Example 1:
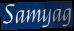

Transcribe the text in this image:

Samyag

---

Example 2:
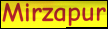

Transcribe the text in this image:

Mirzapur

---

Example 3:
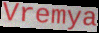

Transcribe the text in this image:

Vremya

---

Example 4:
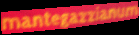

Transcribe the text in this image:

mantegazzianum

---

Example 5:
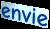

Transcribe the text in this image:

envie